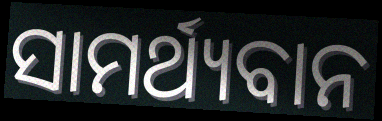
ସାମର୍ଥ୍ୟବାନ